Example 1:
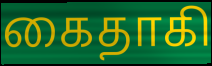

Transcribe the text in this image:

கைதாகி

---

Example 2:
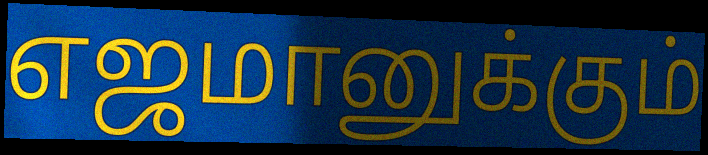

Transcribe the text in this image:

எஜமானுக்கும்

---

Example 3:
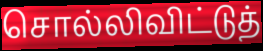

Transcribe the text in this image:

சொல்லிவிட்டுத்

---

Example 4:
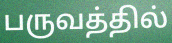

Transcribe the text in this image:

பருவத்தில்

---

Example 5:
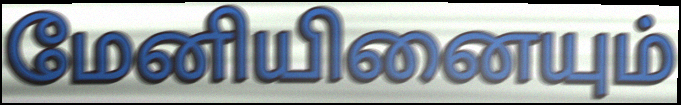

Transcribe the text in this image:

மேனியினையும்